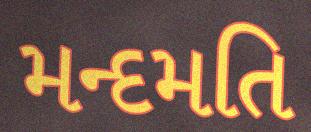
મન્દમતિ